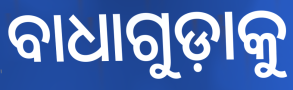
ବାଧାଗୁଡ଼ାକୁ